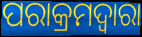
ପରାକ୍ରମଦ୍ୱାରା